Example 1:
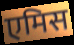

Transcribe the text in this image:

एमिस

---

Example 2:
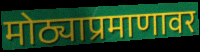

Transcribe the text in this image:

मोठ्याप्रमाणावर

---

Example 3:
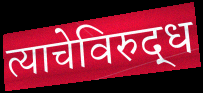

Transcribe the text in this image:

त्याचेविरुद्ध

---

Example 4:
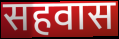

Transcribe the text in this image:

सहवास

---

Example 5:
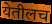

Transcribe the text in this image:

येतीलच